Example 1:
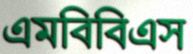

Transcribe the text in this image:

এমবিবিএস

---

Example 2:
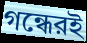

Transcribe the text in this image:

গন্ধেরই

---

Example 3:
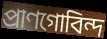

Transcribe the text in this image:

প্রাণগোবিন্দ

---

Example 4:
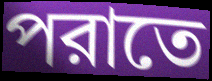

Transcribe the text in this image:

পরাতে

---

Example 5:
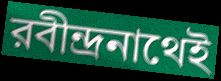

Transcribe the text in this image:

রবীন্দ্রনাথেই